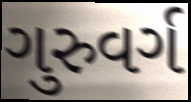
ગુરુવર્ગ